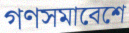
গণসমাবেশে